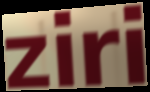
ziri